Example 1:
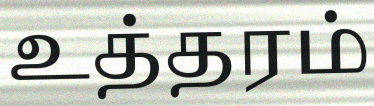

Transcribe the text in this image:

உத்தரம்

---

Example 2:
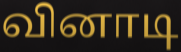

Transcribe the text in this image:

வினாடி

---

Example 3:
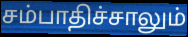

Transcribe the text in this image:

சம்பாதிச்சாலும்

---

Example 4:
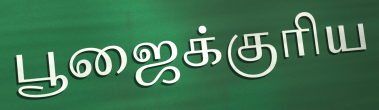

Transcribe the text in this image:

பூஜைக்குரிய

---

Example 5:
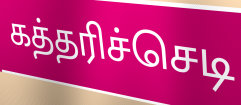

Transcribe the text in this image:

கத்தரிச்செடி